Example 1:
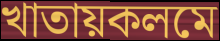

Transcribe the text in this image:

খাতায়কলমে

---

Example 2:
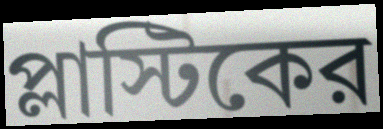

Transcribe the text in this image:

প্লাস্টিকের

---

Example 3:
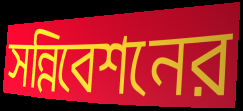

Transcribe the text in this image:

সন্নিবেশনের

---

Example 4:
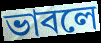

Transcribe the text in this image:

ভাবলে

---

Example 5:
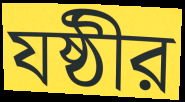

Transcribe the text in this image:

যষ্ঠীর